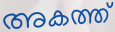
അകത്ത്